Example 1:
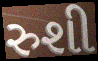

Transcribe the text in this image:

રુશી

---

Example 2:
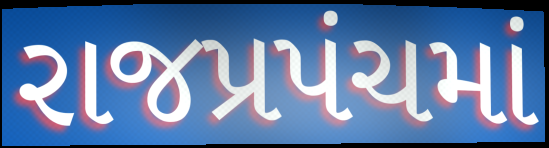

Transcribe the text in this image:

રાજપ્રપંચમાં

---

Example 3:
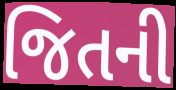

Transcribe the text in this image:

જિતની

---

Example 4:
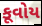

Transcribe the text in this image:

કૂવોય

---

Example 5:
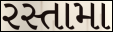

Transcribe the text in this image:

રસ્તામા